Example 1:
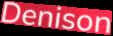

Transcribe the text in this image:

Denison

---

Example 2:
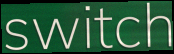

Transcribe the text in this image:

switch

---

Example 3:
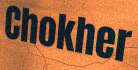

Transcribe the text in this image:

Chokher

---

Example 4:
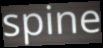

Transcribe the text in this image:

spine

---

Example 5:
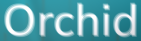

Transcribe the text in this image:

Orchid